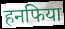
हनफिया